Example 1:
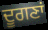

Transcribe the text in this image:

ਦੂਗਣਾਂ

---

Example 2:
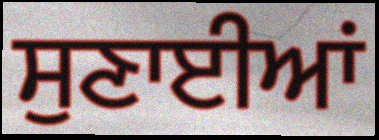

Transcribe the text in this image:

ਸੁਣਾਈਆਂ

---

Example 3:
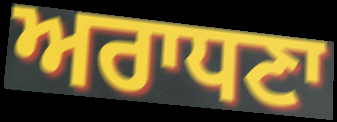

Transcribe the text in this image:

ਅਰਾਧਣਾ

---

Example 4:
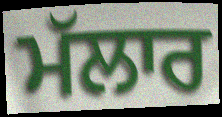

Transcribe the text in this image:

ਮੱਲਾਰ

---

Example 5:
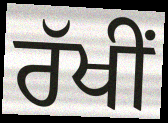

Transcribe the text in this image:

ਰੱਖੀਂ